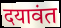
दयावंत